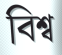
বিশ্ব